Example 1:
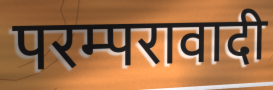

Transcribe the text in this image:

परम्परावादी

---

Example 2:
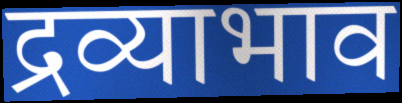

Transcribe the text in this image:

द्रव्याभाव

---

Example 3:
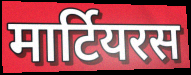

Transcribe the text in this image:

मार्टियरस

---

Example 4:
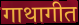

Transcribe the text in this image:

गाथागीत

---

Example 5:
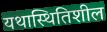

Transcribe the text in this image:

यथास्थितिशील